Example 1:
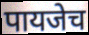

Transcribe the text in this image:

पायजेच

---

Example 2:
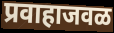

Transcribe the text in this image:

प्रवाहाजवळ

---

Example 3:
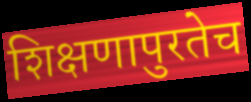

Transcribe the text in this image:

शिक्षणापुरतेच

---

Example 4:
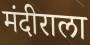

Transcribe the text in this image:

मंदीराला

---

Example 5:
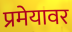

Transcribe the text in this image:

प्रमेयावर